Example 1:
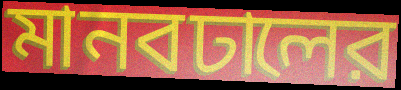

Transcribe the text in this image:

মানবঢালের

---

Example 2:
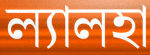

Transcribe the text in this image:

ল্যালহা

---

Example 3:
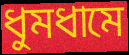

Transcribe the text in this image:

ধুমধামে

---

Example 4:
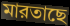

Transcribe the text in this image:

মারতাছে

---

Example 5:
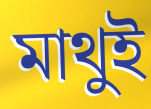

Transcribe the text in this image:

মাথুই